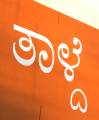
ತಾಳ್ದೆ